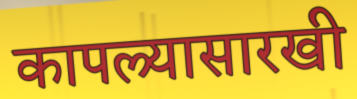
कापल्यासारखी